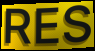
RES